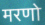
मरणो